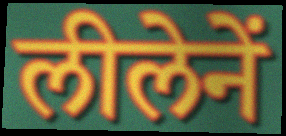
लीलेनें